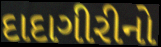
દાદાગીરીનો